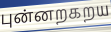
புன்னறகறய